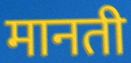
मानती